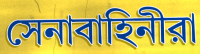
সেনাবাহিনীরা